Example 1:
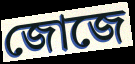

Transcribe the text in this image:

জোজে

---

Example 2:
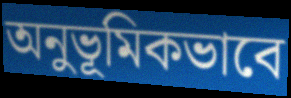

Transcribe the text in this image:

অনুভূমিকভাবে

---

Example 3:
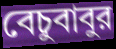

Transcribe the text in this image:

বেচুবাবুর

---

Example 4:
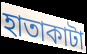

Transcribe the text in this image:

হাতাকাটা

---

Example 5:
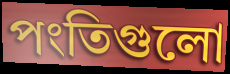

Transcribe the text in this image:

পংতিগুলো